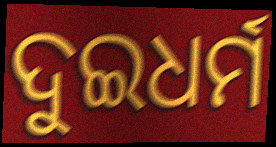
ଦୁଇଧର୍ମ